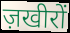
ज़खीरों